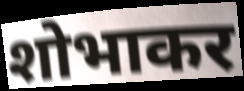
शोभाकर